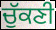
ਚੁੱਕਣੀ